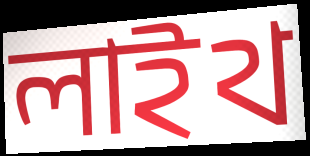
লাইথ